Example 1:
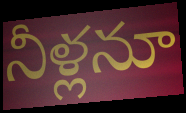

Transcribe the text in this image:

నీళ్లనూ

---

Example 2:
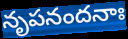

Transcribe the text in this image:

నృపనందనాః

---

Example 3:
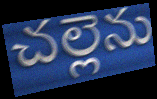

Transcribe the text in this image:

చల్లెను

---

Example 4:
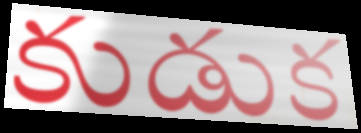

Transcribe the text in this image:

కుడుక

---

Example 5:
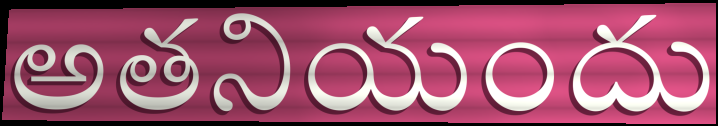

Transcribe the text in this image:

అతనియందు